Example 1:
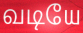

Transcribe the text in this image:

வடியே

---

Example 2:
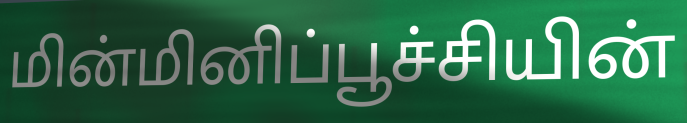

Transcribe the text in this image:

மின்மினிப்பூச்சியின்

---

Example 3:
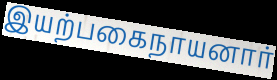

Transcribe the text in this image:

இயற்பகைநாயனார்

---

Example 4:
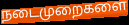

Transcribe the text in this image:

நடைமுறைகளை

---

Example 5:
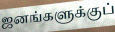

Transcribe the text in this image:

ஜனங்களுக்குப்